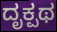
ದೃಕ್ಪಥ